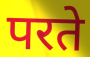
परते